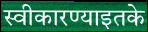
स्वीकारण्याइतके